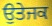
ਉਤੇਜਕ